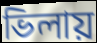
ভিলায়